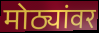
मोठ्यांवर